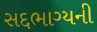
સદ્દભાગ્યની